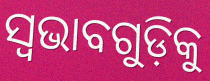
ସ୍ୱଭାବଗୁଡ଼ିକୁ